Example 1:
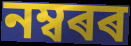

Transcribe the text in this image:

নম্বৰৰ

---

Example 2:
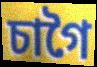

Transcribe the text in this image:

চাগৈ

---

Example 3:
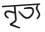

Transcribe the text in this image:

নৃত্য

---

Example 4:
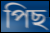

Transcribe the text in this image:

পিছ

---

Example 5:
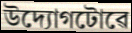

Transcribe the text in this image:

উদ্যোগটোৱে